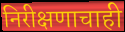
निरीक्षणाचाही